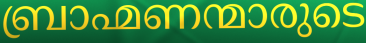
ബ്രാഹ്മണന്മാരുടെ